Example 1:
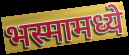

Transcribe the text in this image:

भस्मामध्ये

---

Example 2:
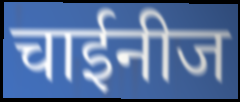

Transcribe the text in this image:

चाईनीज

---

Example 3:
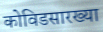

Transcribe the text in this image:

कोविडसारख्या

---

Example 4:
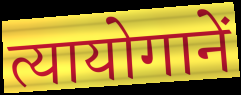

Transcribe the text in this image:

त्यायोगानें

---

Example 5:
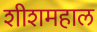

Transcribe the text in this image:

शीशमहाल